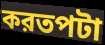
করতপটা